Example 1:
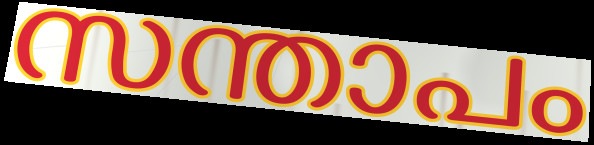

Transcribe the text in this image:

സന്താപം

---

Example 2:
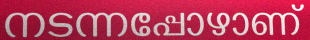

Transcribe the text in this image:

നടന്നപ്പോഴാണ്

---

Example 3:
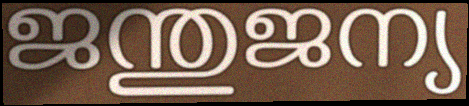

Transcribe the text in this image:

ജന്തുജന്യ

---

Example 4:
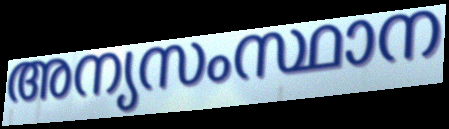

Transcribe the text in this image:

അന്യസംസ്ഥാന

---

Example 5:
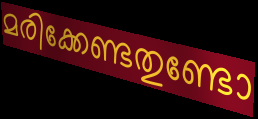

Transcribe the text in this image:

മരിക്കേണ്ടതുണ്ടോ